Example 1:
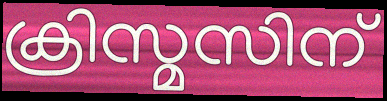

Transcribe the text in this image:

ക്രിസ്മസിന്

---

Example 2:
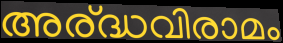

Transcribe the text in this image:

അര്ദ്ധവിരാമം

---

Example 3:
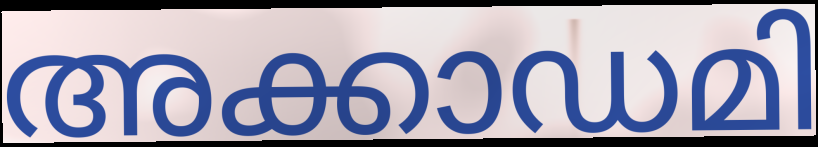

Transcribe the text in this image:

അക്കാഡമി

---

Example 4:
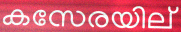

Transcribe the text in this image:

കസേരയില്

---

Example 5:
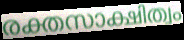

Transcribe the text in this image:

രക്തസാക്ഷിത്വം